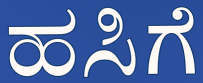
ಹಸಿಗೆ